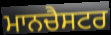
ਮਾਨਚੈਸਟਰ